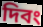
দিবং